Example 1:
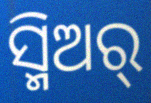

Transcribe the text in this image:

ସ୍ମିଅର୍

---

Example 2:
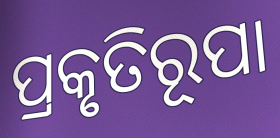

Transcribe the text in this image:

ପ୍ରକୃତିରୂପା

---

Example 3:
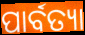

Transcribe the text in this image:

ପାର୍ବତ୍ୟା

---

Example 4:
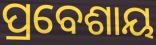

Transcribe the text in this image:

ପ୍ରବେଶାୟ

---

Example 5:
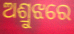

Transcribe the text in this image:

ଅଶ୍ରୁଝରେ